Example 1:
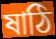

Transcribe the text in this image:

ষাঠি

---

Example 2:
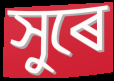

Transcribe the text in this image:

সুৰে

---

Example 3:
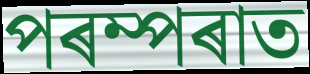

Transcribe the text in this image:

পৰম্পৰাত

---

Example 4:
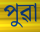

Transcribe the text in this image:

পুৱা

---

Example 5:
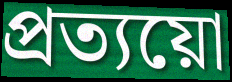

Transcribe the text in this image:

প্ৰত্যয়ো